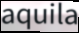
aquila